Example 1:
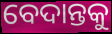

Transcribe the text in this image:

ବେଦାନ୍ତକୁ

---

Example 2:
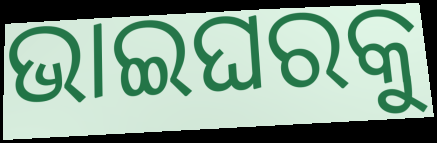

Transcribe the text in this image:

ଭାଇଘରକୁ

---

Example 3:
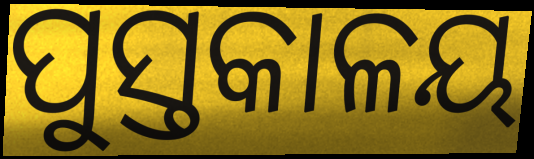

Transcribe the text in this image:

ପୁସ୍ତକାଳୟ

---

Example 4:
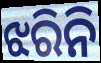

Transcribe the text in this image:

ଝରିନି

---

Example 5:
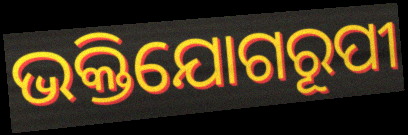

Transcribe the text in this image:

ଭକ୍ତିଯୋଗରୂପୀ